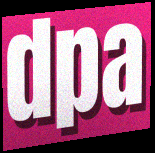
dpa